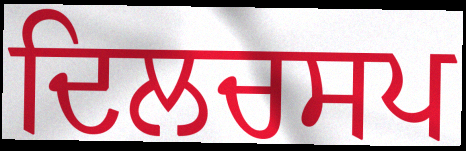
ਦਿਲਚਸਪ